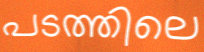
പടത്തിലെ